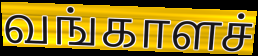
வங்காளச்